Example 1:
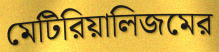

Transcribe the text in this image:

মেটিরিয়ালিজমের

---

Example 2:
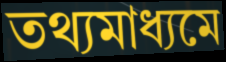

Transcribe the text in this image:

তথ্যমাধ্যমে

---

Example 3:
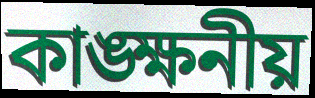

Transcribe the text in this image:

কাঙ্ক্ষনীয়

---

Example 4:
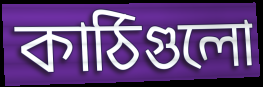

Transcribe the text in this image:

কাঠিগুলো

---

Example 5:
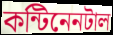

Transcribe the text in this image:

কন্টিনেনটাল